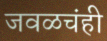
जवळचंही